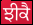
ਝੀਕੈ